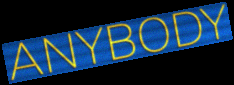
ANYBODY